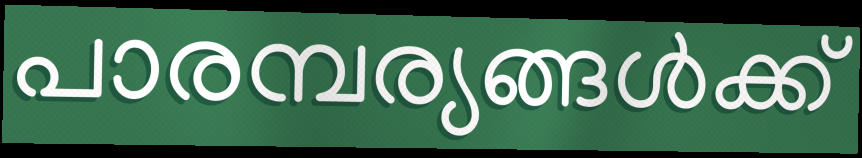
പാരമ്പര്യങ്ങൾക്ക്